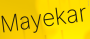
Mayekar